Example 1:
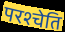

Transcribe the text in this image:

परश्चेति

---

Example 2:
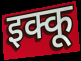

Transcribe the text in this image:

इक्कू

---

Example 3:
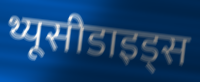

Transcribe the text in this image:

थ्यूसीडाइड्स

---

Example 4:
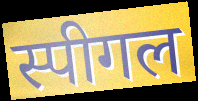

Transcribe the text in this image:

स्पीगल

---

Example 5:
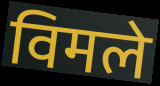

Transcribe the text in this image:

विमले